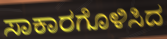
ಸಾಕಾರಗೊಳಿಸಿದ